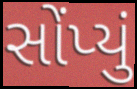
સોંપ્યું